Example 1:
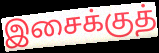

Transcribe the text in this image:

இசைக்குத்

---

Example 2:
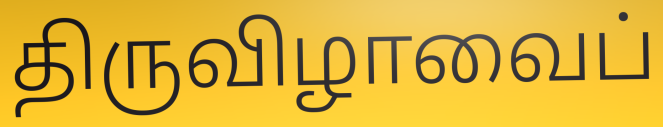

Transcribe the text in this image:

திருவிழாவைப்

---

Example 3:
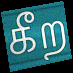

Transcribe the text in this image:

கீற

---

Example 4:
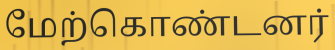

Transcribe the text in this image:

மேற்கொண்டனர்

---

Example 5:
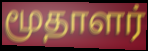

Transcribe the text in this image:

மூதாளர்